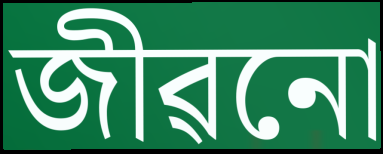
জীৱনো